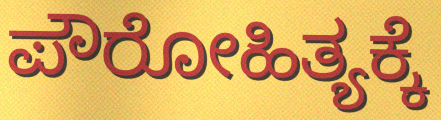
ಪೌರೋಹಿತ್ಯಕ್ಕೆ